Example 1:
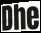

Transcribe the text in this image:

Dhe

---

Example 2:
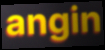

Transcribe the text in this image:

angin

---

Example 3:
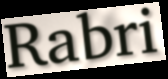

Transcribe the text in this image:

Rabri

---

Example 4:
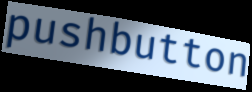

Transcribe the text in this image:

pushbutton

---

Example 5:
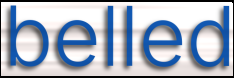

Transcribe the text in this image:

belled